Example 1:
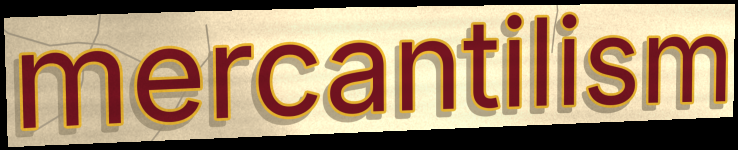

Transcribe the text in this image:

mercantilism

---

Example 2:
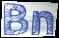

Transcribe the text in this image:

Bn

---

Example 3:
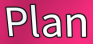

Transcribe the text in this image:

Plan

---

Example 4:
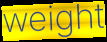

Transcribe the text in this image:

weight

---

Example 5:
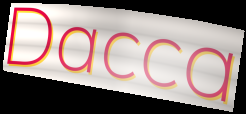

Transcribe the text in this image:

Dacca